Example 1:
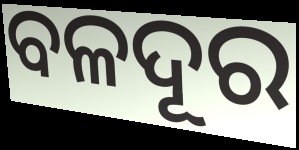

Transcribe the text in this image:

ବଳଦୂର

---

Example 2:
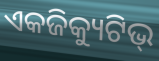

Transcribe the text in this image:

ଏକଜିକ୍ୟୁଟିଭ୍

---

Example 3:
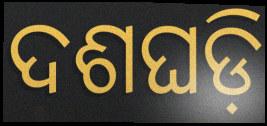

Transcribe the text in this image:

ଦଶଘଡ଼ି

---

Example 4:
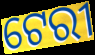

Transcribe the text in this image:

ଟେରୀ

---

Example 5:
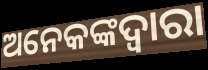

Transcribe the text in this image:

ଅନେକଙ୍କଦ୍ୱାରା